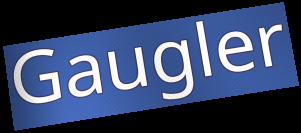
Gaugler